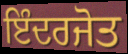
ਇੰਦਰਜੋਤ